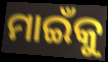
ମାଇଁକୁ